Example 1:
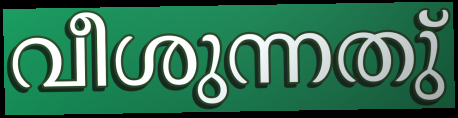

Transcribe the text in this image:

വീശുന്നതു്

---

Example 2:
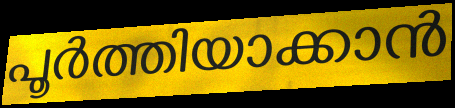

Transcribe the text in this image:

പൂർത്തിയാക്കാൻ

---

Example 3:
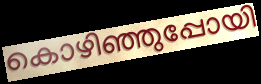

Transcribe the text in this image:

കൊഴിഞ്ഞുപ്പോയി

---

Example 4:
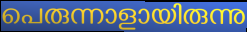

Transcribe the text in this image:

പെരുന്നാളായിരുന്നു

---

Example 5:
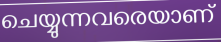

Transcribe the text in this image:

ചെയ്യുന്നവരെയാണ്